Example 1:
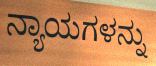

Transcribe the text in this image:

ನ್ಯಾಯಗಳನ್ನು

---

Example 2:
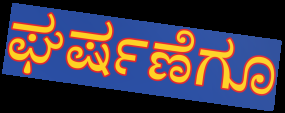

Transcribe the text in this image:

ಘರ್ಷಣೆಗೂ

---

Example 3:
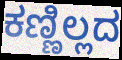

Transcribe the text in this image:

ಕಣ್ಣಿಲ್ಲದ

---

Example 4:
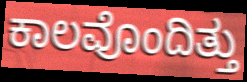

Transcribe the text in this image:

ಕಾಲವೊಂದಿತ್ತು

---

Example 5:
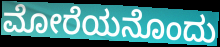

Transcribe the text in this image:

ಮೋರೆಯನೊಂದು